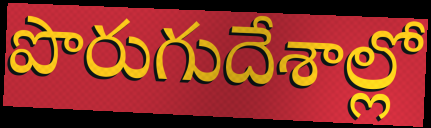
పొరుగుదేశాల్లో